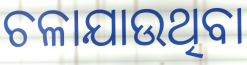
ଚଳାଯାଉଥିବା